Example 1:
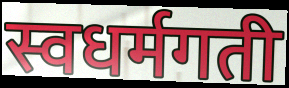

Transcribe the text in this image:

स्वधर्मगती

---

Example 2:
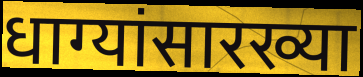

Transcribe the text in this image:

धाग्यांसारख्या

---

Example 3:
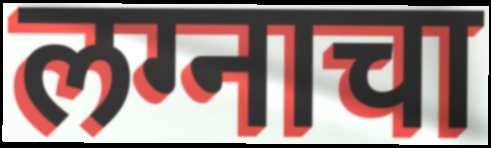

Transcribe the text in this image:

लग्नाचा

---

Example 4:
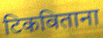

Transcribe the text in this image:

टिकविताना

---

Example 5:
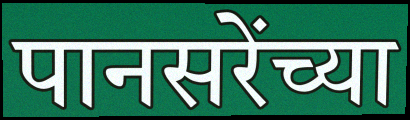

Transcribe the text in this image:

पानसरेंच्या